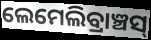
ଲେମେଲିବ୍ରାଞ୍ଚସ୍